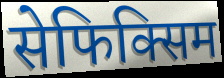
सेफिक्सिम